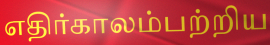
எதிர்காலம்பற்றிய